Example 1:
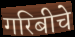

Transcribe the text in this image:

गरिबीचे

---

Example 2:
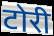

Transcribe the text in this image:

टोरी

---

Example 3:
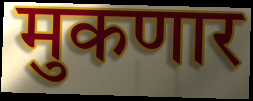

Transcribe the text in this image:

मुकणार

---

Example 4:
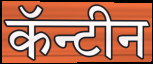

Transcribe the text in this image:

कॅन्टीन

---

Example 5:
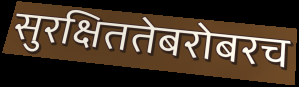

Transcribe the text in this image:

सुरक्षिततेबरोबरच